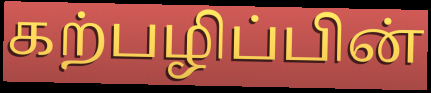
கற்பழிப்பின்